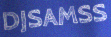
DJSAMSS